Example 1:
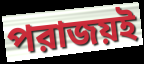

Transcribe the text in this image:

পরাজয়ই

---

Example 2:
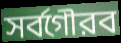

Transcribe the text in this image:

সর্বগৌরব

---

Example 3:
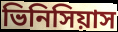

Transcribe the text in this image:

ভিনিসিয়াস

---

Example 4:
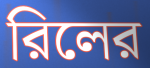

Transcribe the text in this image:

রিলের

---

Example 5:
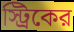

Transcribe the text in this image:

স্ট্রিকের